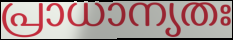
പ്രാധാന്യതഃ